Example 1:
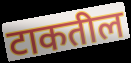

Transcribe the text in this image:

टाकतील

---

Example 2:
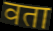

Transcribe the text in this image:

वता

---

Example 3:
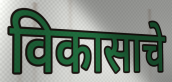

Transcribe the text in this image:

विकासाचे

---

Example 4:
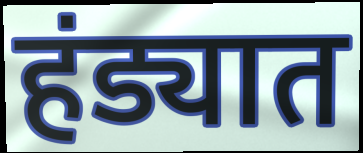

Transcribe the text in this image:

हंड्यात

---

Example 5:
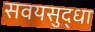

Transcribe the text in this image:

सवयसुद्धा